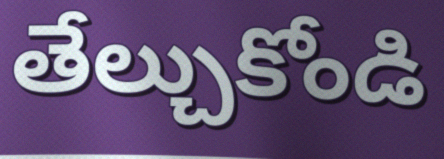
తేల్చుకోండి